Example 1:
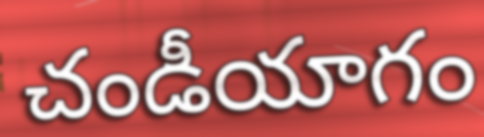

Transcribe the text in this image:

చండీయాగం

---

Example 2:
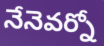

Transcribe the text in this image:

నేనెవర్నో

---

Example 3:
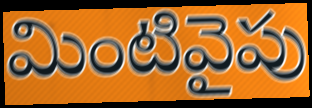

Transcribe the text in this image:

మింటివైపు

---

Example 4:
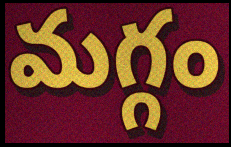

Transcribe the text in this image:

మగ్గం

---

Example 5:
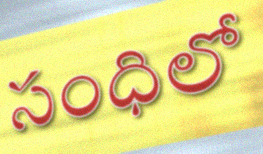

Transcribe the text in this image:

సంధిలో